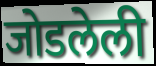
जोडलेली